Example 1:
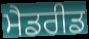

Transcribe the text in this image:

ਮੈਡਰੀਡ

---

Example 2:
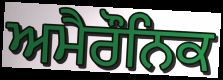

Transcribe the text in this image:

ਅਮੈਰੌਨਿਕ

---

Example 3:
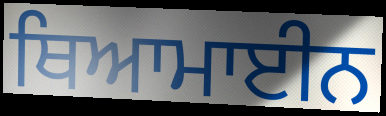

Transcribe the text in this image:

ਥਿਆਮਾਈਨ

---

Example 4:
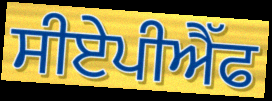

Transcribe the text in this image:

ਸੀਏਪੀਐੱਫ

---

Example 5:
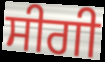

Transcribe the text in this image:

ਸੀਗੀ